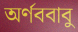
অর্ণববাবু